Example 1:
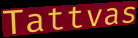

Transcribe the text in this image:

Tattvas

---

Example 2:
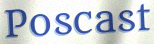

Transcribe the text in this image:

Poscast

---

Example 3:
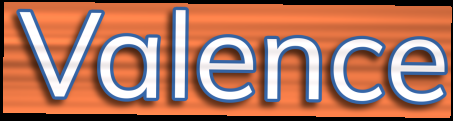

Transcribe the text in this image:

Valence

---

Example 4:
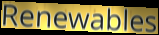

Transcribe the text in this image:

Renewables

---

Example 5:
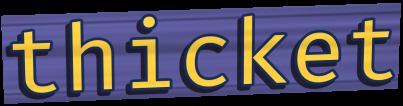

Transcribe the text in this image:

thicket